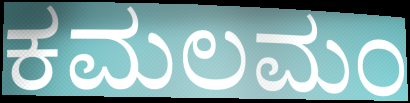
ಕಮಲಮಂ